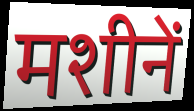
मशीनें